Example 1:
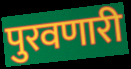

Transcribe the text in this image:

पुरवणारी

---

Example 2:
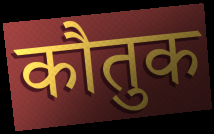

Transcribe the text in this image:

कौतुक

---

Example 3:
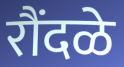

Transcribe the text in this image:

रौंदळे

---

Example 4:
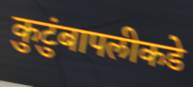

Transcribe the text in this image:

कुटुंबापलीकडे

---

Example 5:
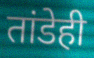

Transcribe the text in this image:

तांडेही